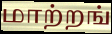
மாற்றங்